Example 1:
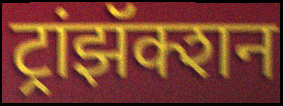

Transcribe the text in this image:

ट्रांझॅक्शन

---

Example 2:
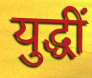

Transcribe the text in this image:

युद्धीं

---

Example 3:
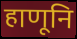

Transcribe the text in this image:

हाणूनि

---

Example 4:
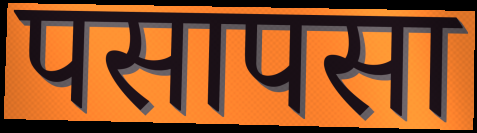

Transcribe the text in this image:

पसापसा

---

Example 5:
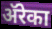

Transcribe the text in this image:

ॲरेका